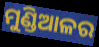
ମୁଣ୍ଡିଆଳର